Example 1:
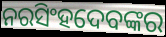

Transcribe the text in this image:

ନରସିଂହଦେବଙ୍କର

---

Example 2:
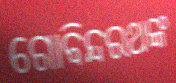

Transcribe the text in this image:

ଗୋବିନ୍ଦରଥଙ୍କ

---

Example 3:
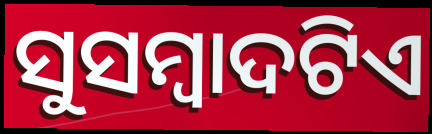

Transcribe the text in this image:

ସୁସମ୍ବାଦଟିଏ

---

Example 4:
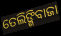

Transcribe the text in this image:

ତେଲିଙ୍ଗିବାଜା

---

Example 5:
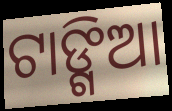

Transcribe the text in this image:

ଟାଙ୍ଗିଆ